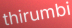
thirumbi